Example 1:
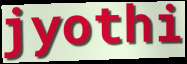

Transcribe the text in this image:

jyothi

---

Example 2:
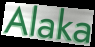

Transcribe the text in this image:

Alaka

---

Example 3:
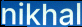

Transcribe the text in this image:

nikhal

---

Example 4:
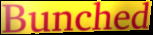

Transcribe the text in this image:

Bunched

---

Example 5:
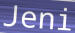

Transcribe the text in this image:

Jeni